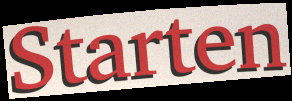
Starten